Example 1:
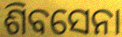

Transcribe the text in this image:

ଶିବସେନା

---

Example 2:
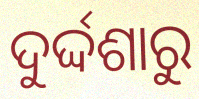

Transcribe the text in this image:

ଦୁର୍ଦ୍ଦଶାରୁ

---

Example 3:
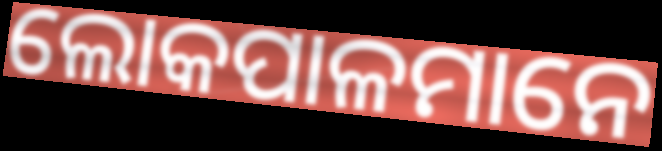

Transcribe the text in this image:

ଲୋକପାଳମାନେ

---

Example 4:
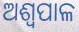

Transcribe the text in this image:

ଅଶ୍ୱପାଳ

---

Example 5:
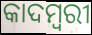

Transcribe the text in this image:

କାଦମ୍ୱରୀ